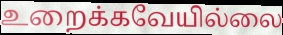
உறைக்கவேயில்லை